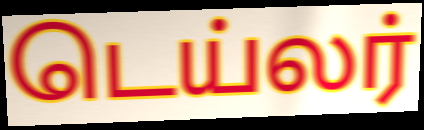
டெய்லர்